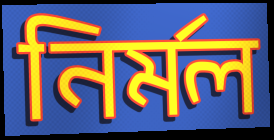
নির্মল